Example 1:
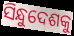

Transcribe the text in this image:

ସିନ୍ଧୁଦେଶକୁ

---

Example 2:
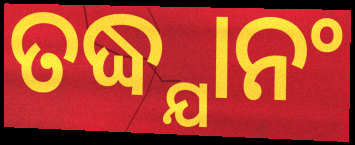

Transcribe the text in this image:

ତଦ୍ଧ୍ଯାନଂ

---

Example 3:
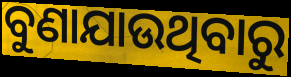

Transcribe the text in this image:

ବୁଣାଯାଉଥିବାରୁ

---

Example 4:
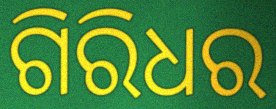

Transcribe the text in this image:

ଗିରିଧର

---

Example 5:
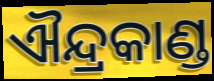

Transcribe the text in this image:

ଐନ୍ଦ୍ରକାଣ୍ଡ